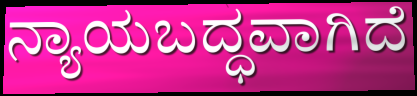
ನ್ಯಾಯಬದ್ಧವಾಗಿದೆ